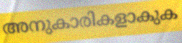
അനുകാരികളാകുക